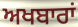
ਅਖਬਾਰਾਂ